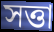
সত্তা